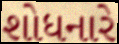
શોધનારે